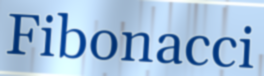
Fibonacci